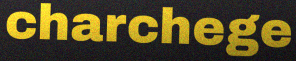
charchege